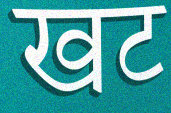
खट